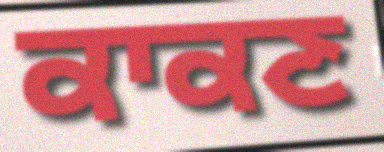
ਕਾਕਣ